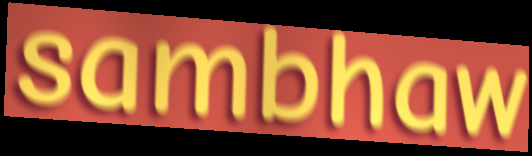
sambhaw